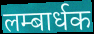
लम्बार्धक